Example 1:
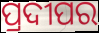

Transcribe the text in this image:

ପ୍ରଦୀପର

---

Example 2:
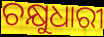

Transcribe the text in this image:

ଚକ୍ଷୁଧାରୀ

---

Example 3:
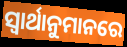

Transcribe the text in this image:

ସ୍ୱାର୍ଥାନୁମାନରେ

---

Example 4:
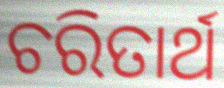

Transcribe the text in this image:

ଚରିତାର୍ଥ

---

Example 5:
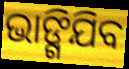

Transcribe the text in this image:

ଭାଙ୍ଗିଯିବ